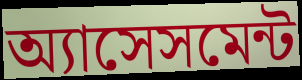
অ্যাসেসমেন্ট